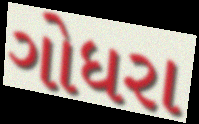
ગોધરા